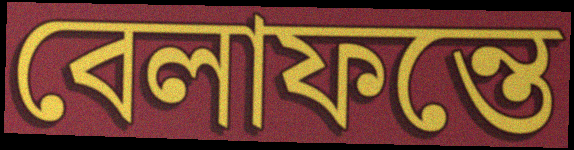
বেলাফন্তে